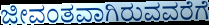
ಜೀವಂತವಾಗಿರುವವರೆಗೆ